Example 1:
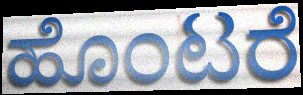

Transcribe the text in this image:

ಹೊಂಟರೆ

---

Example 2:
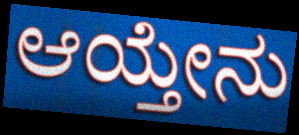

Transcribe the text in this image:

ಆಯ್ತೇನು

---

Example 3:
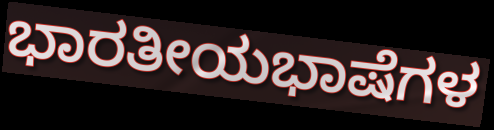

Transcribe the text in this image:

ಭಾರತೀಯಭಾಷೆಗಳ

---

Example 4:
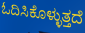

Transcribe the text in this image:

ಓದಿಸಿಕೊಳ್ಳುತ್ತದೆ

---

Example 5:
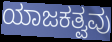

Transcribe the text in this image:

ಯಾಜಕತ್ವವು